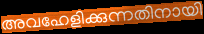
അവഹേളിക്കുന്നതിനായി